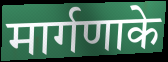
मार्गणाके